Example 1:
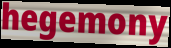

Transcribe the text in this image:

hegemony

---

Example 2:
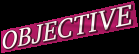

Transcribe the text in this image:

OBJECTIVE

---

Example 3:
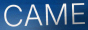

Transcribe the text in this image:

CAME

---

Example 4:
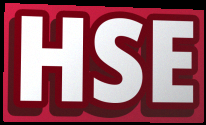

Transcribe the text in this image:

HSE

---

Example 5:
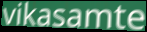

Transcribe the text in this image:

vikasamte